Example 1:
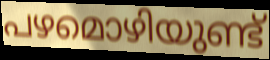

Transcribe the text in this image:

പഴമൊഴിയുണ്ട്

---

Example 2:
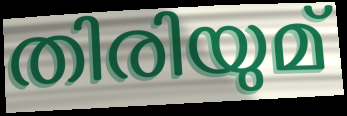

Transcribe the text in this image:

തിരിയുമ്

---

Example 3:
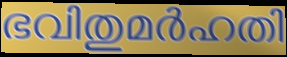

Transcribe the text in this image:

ഭവിതുമർഹതി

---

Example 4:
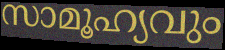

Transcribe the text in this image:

സാമൂഹ്യവും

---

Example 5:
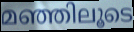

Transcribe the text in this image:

മഞ്ഞിലൂടെ